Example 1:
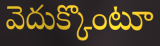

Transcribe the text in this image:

వెదుక్కొంటూ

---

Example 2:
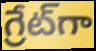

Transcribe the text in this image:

గ్రేట్‌గా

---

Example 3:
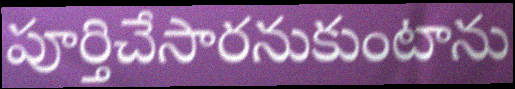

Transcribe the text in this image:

పూర్తిచేసారనుకుంటాను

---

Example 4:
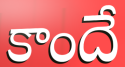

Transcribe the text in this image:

కాందే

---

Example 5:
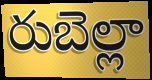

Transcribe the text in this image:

రుబెల్లా